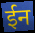
ईन